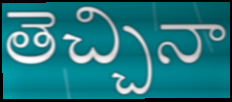
తెచ్చినా